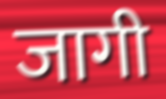
जागी